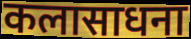
कलासाधना